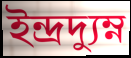
ইন্দ্রদ্যুম্ন